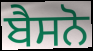
ਬੈਸਨੋ